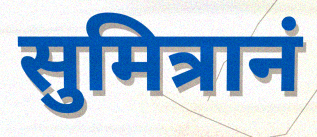
सुमित्रानं